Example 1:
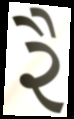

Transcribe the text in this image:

રૈ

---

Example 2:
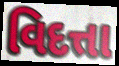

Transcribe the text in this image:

વિદત્તા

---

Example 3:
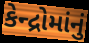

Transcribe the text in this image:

કેન્દ્રોમાંનું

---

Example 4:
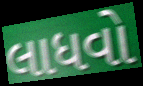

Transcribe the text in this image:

લાધવો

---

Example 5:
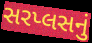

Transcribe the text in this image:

સરપ્લસનું